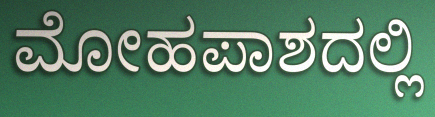
ಮೋಹಪಾಶದಲ್ಲಿ